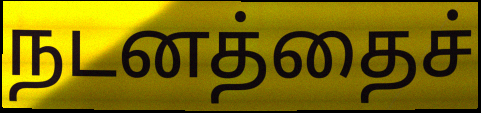
நடனத்தைச்